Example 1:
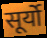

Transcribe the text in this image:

सूर्यो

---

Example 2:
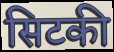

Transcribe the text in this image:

सिटकी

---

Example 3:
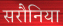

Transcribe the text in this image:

सरौनिया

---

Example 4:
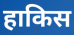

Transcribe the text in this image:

हाकिस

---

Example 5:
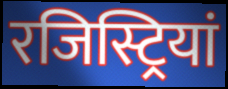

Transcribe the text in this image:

रजिस्ट्रियां